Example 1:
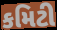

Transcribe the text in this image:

કમિટી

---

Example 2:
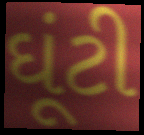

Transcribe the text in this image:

ઘૂંટી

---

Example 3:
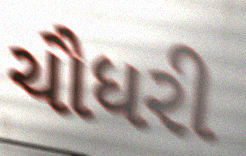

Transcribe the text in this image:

ચૌધરી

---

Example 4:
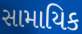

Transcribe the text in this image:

સામાયિક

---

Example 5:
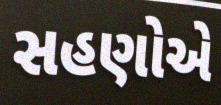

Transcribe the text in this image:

સહણોએ